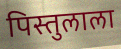
पिस्तुलाला